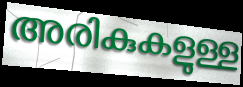
അരികുകളുള്ള